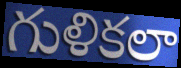
గుళికలా